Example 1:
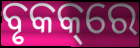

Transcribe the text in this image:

ବୃକକ୍‌ରେ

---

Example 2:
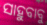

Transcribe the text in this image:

ସାହୁବାବୁ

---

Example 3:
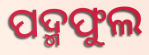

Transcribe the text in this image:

ପଦ୍ମଫୁଲ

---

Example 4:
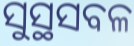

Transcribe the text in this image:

ସୁସ୍ଥସବଳ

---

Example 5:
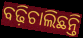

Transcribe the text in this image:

ବଢ଼ିଚାଲିଛନ୍ତି